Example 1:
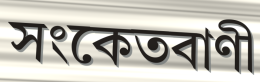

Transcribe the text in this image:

সংকেতবাণী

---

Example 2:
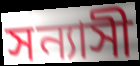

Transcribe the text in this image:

সন্যাসী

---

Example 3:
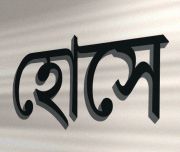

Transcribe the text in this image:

হোসে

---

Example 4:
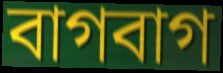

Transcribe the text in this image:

বাগবাগ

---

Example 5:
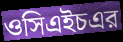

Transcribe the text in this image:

ওসিএইচএর